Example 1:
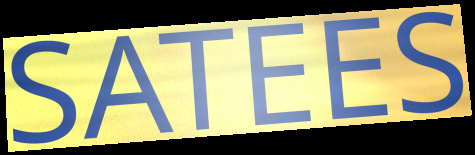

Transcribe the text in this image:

SATEES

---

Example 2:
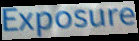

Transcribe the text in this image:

Exposure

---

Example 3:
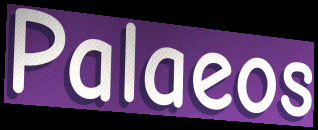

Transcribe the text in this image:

Palaeos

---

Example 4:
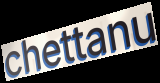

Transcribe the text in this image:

chettanu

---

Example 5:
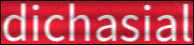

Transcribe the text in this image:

dichasial